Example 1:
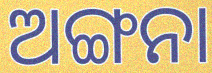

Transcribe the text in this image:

ଅଙ୍ଗନା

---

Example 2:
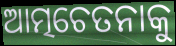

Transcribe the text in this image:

ଆତ୍ମଚେତନାକୁ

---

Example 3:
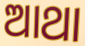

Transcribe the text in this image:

ଆଥା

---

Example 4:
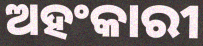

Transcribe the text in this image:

ଅହଂକାରୀ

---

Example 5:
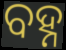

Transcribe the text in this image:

ବହ୍ନ